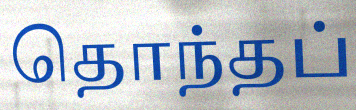
தொந்தப்